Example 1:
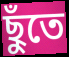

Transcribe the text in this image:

ছুঁতে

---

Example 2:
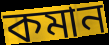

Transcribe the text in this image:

কমান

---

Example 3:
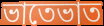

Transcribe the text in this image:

ভাতেভাত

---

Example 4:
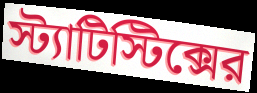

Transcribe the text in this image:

স্ট্যাটিস্টিক্সের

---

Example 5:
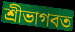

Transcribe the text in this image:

শ্রীভাগবত